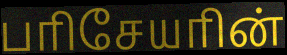
பரிசேயரின்